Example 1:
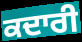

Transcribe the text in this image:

ਕਦਾਰੀ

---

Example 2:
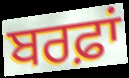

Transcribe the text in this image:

ਬਰਫ਼ਾਂ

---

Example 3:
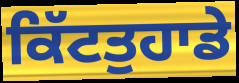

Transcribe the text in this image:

ਕਿੱਟਤੁਹਾਡੇ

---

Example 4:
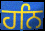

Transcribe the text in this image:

ਹਨਿ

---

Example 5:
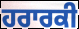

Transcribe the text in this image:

ਹਰਾਰਕੀ